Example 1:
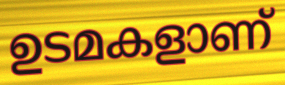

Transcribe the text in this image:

ഉടമകളാണ്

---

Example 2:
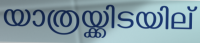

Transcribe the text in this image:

യാത്രയ്ക്കിടയില്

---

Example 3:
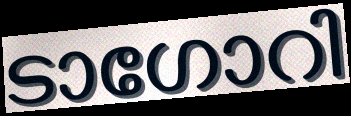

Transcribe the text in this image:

ടാഗോറി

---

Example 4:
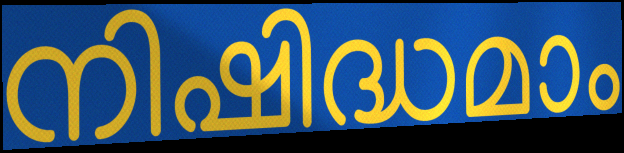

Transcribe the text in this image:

നിഷിദ്ധമാം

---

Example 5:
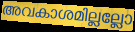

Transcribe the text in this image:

അവകാശമില്ലല്ലോ